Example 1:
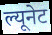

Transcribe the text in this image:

ल्यूनेट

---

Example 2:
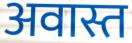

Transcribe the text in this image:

अवास्त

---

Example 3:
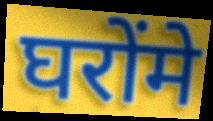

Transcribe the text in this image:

घरोंमे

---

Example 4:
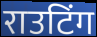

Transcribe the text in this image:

राउटिंग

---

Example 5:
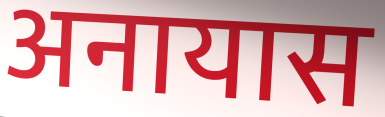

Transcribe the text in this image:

अनायास